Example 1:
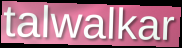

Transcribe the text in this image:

talwalkar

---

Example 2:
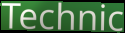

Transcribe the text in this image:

Technic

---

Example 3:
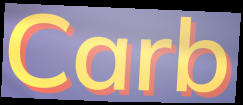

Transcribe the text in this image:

Carb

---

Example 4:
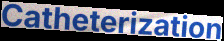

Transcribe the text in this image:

Catheterization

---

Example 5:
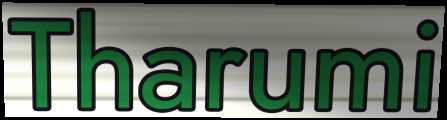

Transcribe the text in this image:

Tharumi